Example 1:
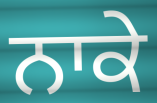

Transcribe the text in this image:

ਨਾਕੇ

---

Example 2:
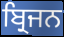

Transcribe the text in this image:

ਬ੍ਰਿਜਨ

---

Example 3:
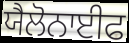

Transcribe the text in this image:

ਯੈਲੋਨਾਈਫ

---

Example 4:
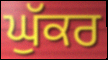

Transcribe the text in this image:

ਘੁੱਕਰ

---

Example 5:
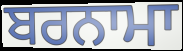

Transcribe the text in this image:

ਬਰਨਾਮਾ